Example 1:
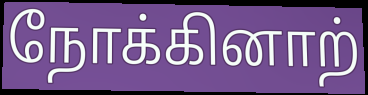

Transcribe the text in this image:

நோக்கினாற்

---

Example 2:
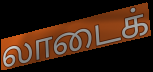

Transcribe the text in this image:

லாடைக்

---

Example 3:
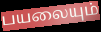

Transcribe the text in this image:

பயலையும்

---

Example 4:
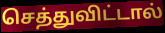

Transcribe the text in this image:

செத்துவிட்டால்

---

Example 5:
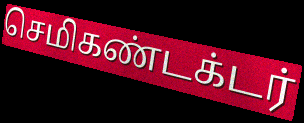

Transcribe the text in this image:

செமிகண்டக்டர்